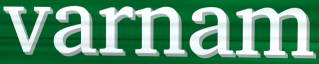
varnam